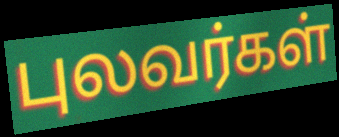
புலவர்கள்